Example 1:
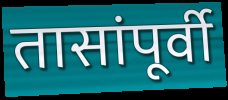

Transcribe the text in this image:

तासांपूर्वी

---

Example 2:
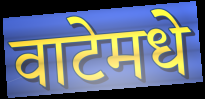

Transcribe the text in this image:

वाटेमधे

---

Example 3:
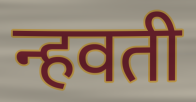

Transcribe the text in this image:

न्हवती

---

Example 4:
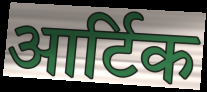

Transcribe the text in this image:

आर्टिक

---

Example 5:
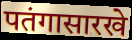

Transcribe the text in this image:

पतंगासारखे